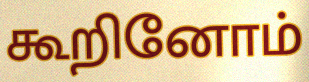
கூறினோம்